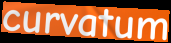
curvatum